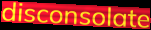
disconsolate